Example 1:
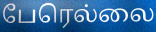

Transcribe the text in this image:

பேரெல்லை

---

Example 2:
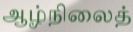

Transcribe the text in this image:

ஆழ்நிலைத்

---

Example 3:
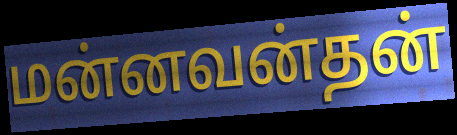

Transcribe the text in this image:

மன்னவன்தன்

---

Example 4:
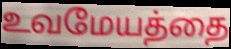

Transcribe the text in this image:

உவமேயத்தை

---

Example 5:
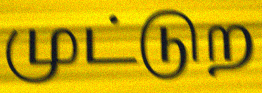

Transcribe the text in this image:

முட்டுற